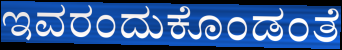
ಇವರಂದುಕೊಂಡಂತೆ